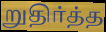
றுதிர்த்த